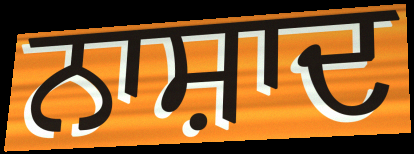
ਨਾਸ਼ਾਦ